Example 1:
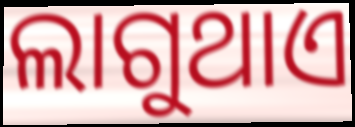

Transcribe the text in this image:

ଲାଗୁଥାଏ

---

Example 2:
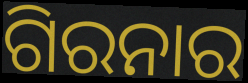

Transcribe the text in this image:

ଗିରନାର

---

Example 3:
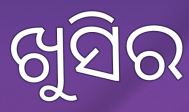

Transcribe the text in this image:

ଖୁସିର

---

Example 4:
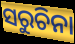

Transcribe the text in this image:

ସରୁଚିନା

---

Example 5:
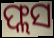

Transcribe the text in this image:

ଫ୍ଲସ